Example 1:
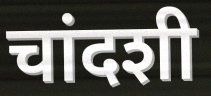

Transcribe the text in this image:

चांदशी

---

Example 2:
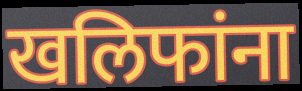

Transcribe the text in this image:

खलिफांना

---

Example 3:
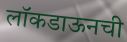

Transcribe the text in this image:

लॉकडाऊनची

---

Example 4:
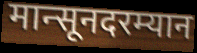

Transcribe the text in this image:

मान्सूनदरम्यान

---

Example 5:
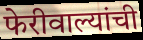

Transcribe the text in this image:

फेरीवाल्यांची